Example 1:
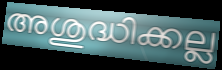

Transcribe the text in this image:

അശുദ്ധിക്കല്ല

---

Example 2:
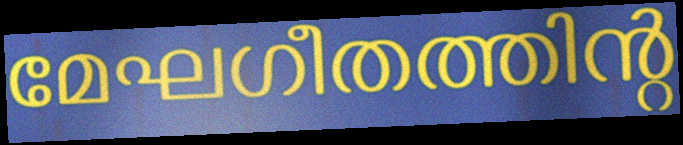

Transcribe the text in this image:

മേഘഗീതത്തിന്റ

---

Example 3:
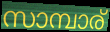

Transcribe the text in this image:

സാമ്പാര്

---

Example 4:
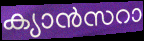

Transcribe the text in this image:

ക്യാൻസറാ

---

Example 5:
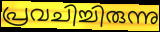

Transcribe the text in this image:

പ്രവചിച്ചിരുന്നു